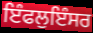
ਇੰਫਲੁਇੰਸਰ